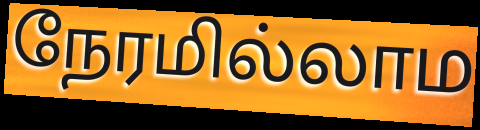
நேரமில்லாம